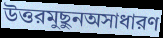
উত্তরমুছুনঅসাধারণ